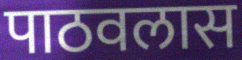
पाठवलास